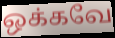
ஒக்கவே